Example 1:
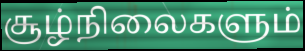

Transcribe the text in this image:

சூழ்நிலைகளும்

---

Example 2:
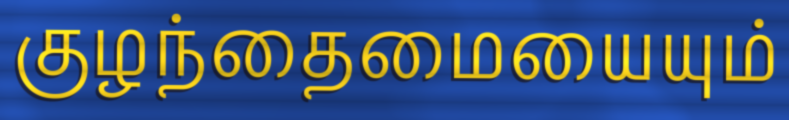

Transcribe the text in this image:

குழந்தைமையையும்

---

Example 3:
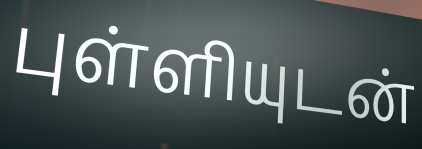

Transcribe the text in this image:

புள்ளியுடன்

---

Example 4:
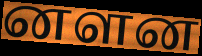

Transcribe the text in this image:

னளன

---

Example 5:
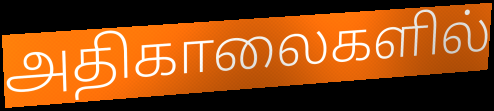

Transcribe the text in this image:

அதிகாலைகளில்